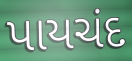
પાયચંદ